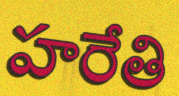
హరేతి